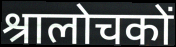
श्रालोचकों